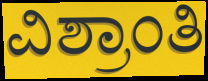
ವಿಶ್ರಾಂತಿ